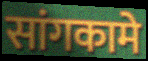
सांगकामे